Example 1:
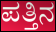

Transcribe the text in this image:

ಪತ್ತಿನ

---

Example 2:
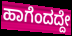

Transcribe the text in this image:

ಹಾಗೆಂದದ್ದೇ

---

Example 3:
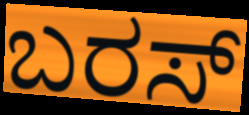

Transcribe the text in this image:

ಬರಸ್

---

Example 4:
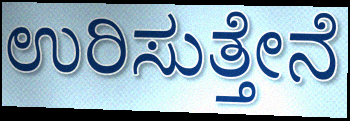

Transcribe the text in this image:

ಉರಿಸುತ್ತೇನೆ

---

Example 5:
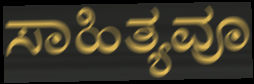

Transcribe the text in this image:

ಸಾಹಿತ್ಯವೂ